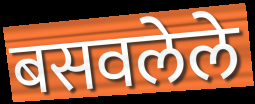
बसवलेले